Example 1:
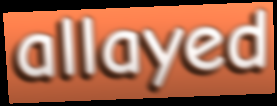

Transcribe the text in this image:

allayed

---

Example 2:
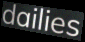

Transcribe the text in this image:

dailies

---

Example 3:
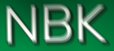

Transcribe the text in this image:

NBK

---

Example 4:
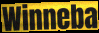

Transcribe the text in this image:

Winneba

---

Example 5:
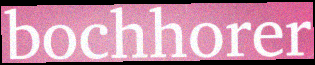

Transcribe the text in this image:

bochhorer